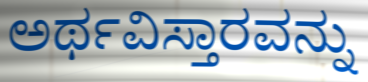
ಅರ್ಥವಿಸ್ತಾರವನ್ನು